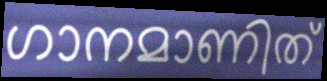
ഗാനമാണിത്